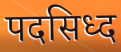
पदसिध्द